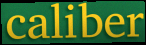
caliber